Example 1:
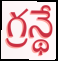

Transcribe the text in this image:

గ్రన్థే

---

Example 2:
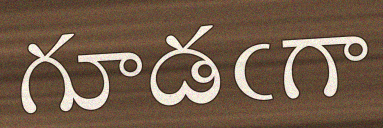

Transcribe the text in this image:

గూడఁగా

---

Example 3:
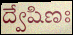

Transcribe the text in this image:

ద్వేషిణః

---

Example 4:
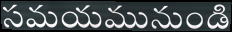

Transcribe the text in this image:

సమయమునుండి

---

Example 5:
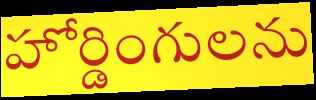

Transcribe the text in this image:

హోర్డింగులను